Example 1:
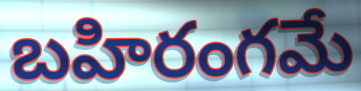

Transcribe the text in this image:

బహిరంగమే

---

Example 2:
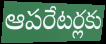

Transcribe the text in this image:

ఆపరేటర్లకు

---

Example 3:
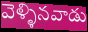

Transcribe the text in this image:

వెళ్ళినవాడు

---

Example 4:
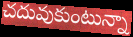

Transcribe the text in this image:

చదువుకుంటున్నా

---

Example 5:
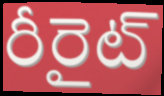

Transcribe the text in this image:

రీరైట్